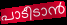
പാടീടാൻ